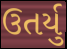
ઉતર્યુ